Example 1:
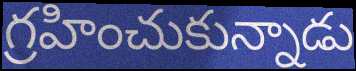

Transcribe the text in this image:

గ్రహించుకున్నాడు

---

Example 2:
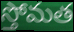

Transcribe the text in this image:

స్తోమత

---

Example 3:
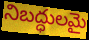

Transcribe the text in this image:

నిబద్ధులమై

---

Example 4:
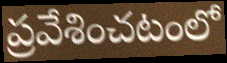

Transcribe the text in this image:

ప్రవేశించటంలో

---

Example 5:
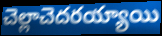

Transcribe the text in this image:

చెల్లాచెదరయ్యాయి